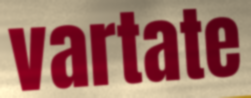
vartate